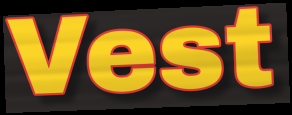
Vest